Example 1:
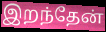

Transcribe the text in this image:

இறந்தேன்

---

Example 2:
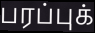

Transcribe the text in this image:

பரப்புக்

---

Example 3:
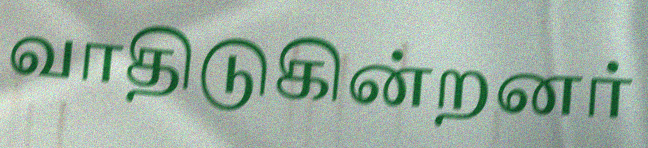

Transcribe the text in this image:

வாதிடுகின்றனர்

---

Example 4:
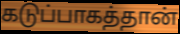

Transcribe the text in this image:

கடுப்பாகத்தான்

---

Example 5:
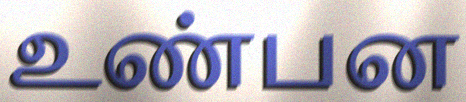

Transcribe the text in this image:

உண்பன